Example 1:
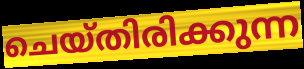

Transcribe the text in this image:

ചെയ്തിരിക്കുന്ന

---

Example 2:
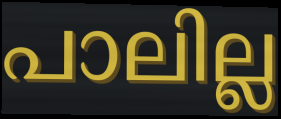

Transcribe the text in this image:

പാലില്ല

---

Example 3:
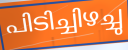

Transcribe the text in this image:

പിടിച്ചിഴച്ചു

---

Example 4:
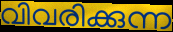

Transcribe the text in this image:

വിവരിക്കുന്ന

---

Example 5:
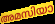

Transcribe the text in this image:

അമസിയാ